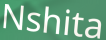
Nshita